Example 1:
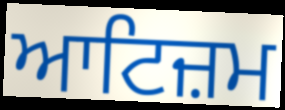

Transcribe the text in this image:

ਆਟਿਜ਼ਮ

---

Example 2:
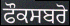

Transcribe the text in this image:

ਫੌਕਸਬਰੋ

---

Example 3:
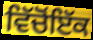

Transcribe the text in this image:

ਵਿੱਚੋਂਇੱਕ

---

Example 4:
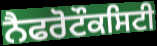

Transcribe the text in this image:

ਨੈਫਰੋਟੌਕਸਿਟੀ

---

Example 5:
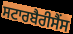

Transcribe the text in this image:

ਸਟਾਰਬੈਰੀਸੈਂਸ